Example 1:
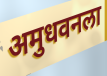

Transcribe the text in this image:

अमुधवनला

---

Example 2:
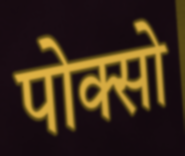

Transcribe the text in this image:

पोक्सो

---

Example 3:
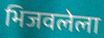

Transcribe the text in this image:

भिजवलेला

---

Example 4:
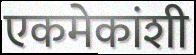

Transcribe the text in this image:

एकमेकांशी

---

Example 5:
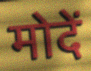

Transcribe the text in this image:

मोदें